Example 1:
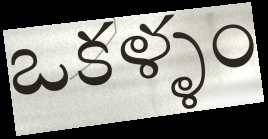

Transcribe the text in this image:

ఒకళ్ళం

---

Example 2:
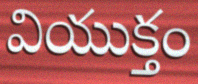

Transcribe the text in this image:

వియుక్తం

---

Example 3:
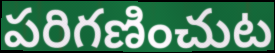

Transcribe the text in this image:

పరిగణించుట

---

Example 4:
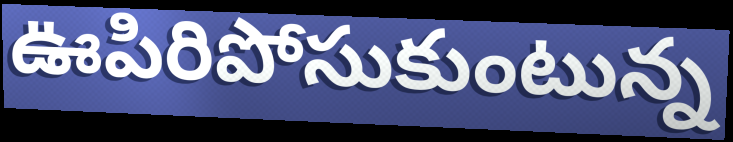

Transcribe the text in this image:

ఊపిరిపోసుకుంటున్న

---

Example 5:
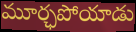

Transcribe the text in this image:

మూర్ఛపోయాడు